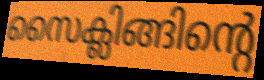
സൈക്ലിങ്ങിന്റെ